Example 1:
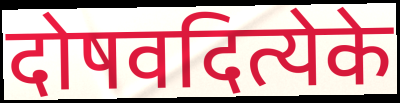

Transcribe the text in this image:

दोषवदित्येके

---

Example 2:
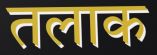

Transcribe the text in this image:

तलाक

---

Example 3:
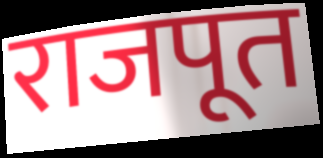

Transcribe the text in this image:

राजपूत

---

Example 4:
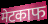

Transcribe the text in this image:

मेटकाफ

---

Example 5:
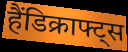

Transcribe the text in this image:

हैंडिक्राफ्ट्स